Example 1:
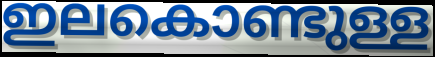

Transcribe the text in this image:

ഇലകൊണ്ടുള്ള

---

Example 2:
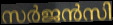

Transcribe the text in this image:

സർജൻസി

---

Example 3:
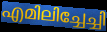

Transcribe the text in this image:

എമിലിച്ചേച്ചി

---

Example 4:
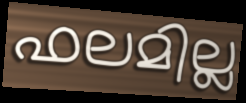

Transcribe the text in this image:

ഫലമില്ല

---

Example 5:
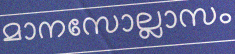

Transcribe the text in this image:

മാനസോല്ലാസം